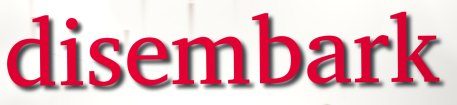
disembark